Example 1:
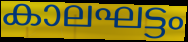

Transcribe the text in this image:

കാലഘട്ടം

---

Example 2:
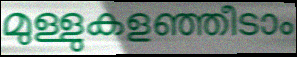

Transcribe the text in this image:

മുള്ളുകളഞ്ഞീടാം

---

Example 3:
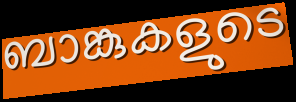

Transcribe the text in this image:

ബാങ്കുകളുടെ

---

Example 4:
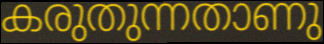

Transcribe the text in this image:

കരുതുന്നതാണു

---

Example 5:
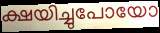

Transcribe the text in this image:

ക്ഷയിച്ചുപോയോ